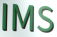
IMS